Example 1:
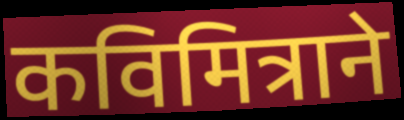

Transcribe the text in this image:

कविमित्राने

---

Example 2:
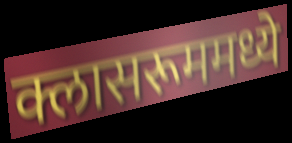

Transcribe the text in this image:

क्लासरूममध्ये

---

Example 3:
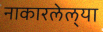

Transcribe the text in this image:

नाकारलेल्या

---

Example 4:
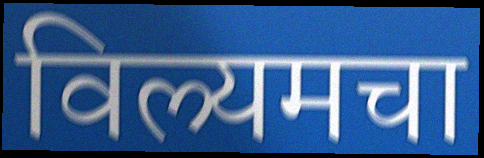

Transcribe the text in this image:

विल्यमचा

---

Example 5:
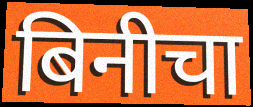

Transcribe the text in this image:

बिनीचा